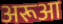
अरूआ